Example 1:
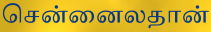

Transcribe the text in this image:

சென்னைலதான்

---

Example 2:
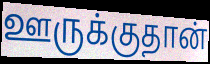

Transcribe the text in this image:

ஊருக்குதான்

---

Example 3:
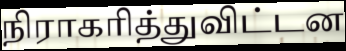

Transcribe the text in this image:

நிராகரித்துவிட்டன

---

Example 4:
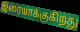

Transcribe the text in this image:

இரையாக்குகிறது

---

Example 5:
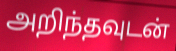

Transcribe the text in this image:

அறிந்தவுடன்